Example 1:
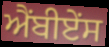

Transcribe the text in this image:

ਐਂਬੀਏਂਸ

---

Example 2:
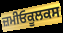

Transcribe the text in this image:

ਜ਼ਮੀਓਕੂਲਕਸ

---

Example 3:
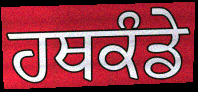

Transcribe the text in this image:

ਹਥਕੰਡੇ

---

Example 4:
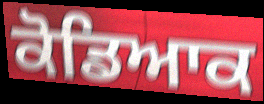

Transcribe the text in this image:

ਕੋਡਿਆਕ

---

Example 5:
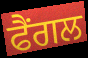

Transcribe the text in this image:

ਫੈਂਗਲ